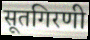
सूतगिरणी